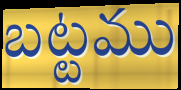
బట్టము